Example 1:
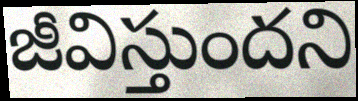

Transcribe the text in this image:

జీవిస్తుందని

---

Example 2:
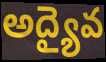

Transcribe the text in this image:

అద్యైవ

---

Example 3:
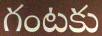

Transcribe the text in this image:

గంటకు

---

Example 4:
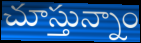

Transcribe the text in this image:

చూస్తున్నాం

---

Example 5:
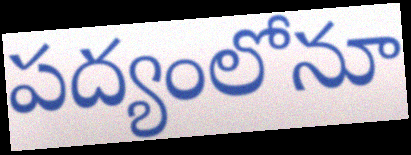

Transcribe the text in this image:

పద్యంలోనూ